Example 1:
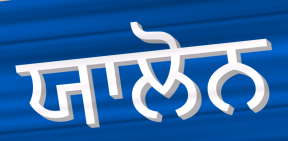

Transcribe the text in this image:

ਯਾਲੋਨ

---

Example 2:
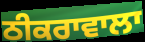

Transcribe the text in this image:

ਠੀਕਰਾਵਾਲਾ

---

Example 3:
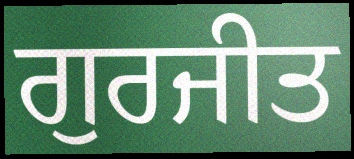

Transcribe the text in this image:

ਗੁਰਜੀਤ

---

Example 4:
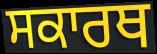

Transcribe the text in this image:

ਸਕਾਰਥ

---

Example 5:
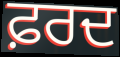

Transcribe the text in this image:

ਫ਼ਰਦ